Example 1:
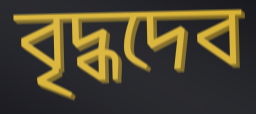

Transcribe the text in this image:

বৃদ্ধদেব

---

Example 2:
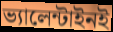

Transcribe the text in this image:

ভ্যালেন্টাইনই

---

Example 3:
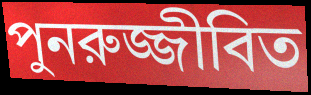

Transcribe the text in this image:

পুনরুজ্জীবিত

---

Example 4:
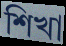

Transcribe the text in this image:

শিখা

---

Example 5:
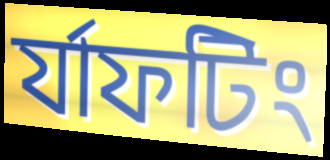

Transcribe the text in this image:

র্যাফটিং